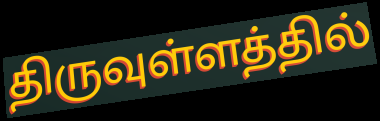
திருவுள்ளத்தில்